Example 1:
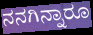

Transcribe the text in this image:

ನನಗಿನ್ನಾರೂ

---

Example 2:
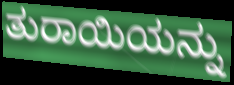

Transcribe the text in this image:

ತುರಾಯಿಯನ್ನು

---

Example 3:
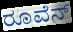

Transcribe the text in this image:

ರೂವೆನ್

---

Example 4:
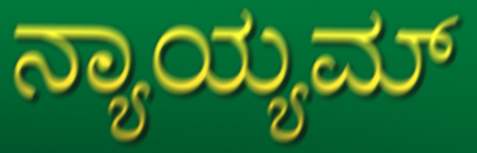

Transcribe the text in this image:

ನ್ಯಾಯ್ಯಮ್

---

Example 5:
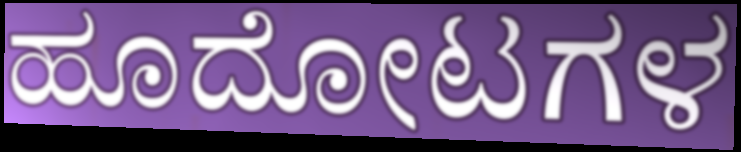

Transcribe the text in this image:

ಹೂದೋಟಗಳ